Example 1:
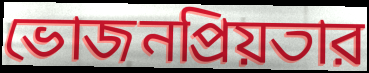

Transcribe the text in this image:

ভোজনপ্রিয়তার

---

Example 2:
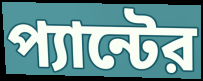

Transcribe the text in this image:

প্যান্টের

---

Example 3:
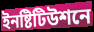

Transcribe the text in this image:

ইনষ্টিটিউশনে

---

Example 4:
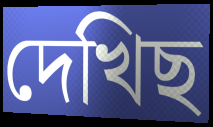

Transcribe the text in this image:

দেখিছ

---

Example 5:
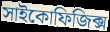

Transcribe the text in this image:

সাইকোফিজিক্স